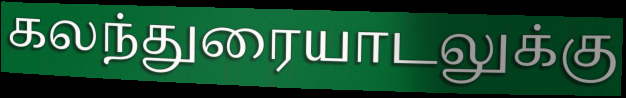
கலந்துரையாடலுக்கு